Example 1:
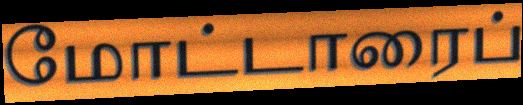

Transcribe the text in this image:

மோட்டாரைப்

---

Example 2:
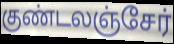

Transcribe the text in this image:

குண்டலஞ்சேர்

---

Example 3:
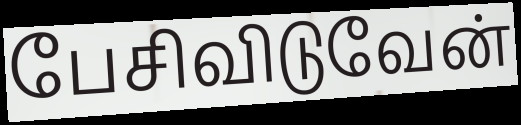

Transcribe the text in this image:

பேசிவிடுவேன்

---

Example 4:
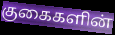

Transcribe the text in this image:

குகைகளின்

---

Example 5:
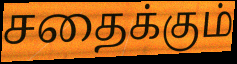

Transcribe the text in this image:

சதைக்கும்